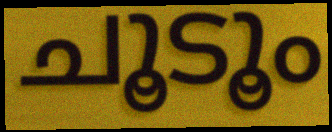
ചൂടൂം